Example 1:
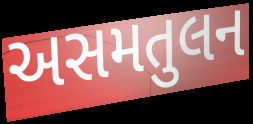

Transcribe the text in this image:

અસમતુલન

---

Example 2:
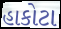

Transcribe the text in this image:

હાકોટા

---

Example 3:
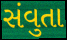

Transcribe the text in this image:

સંવુતા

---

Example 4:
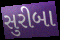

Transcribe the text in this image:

સુરીબા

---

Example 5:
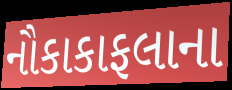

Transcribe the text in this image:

નૌકાકાફલાના